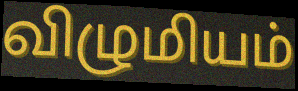
விழுமியம்